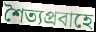
শৈত্যপ্রবাহে